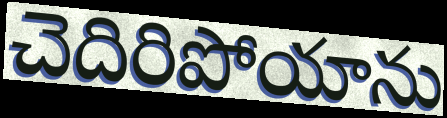
చెదిరిపోయాను